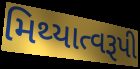
મિથ્યાત્વરૂપી